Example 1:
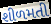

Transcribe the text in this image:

શીળમતી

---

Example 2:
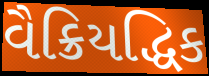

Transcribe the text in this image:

વૈક્રિયદ્ધિક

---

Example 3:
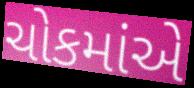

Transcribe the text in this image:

ચોકમાંએ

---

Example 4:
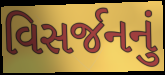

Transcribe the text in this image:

વિસર્જનનું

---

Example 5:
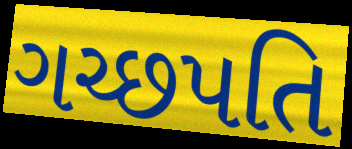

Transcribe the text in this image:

ગચ્છપતિ